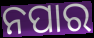
ନପାର